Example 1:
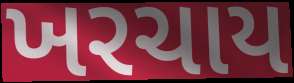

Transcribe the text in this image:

ખરચાય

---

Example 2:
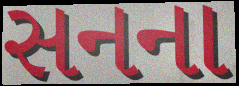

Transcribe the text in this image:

સનના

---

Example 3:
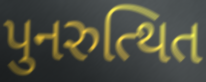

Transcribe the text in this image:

પુનરુત્થિત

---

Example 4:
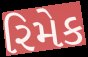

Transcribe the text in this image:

રિમેક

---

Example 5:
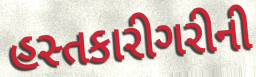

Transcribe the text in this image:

હસ્તકારીગરીની